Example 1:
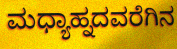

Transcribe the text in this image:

ಮಧ್ಯಾಹ್ನದವರೆಗಿನ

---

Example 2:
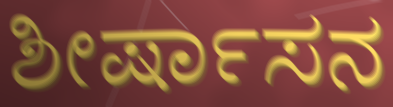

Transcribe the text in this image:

ಶೀರ್ಷಾಸನ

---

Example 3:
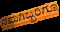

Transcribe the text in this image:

ನಮಗಿಬ್ಬರಿಗೂ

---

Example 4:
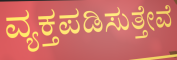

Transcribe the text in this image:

ವ್ಯಕ್ತಪಡಿಸುತ್ತೇವೆ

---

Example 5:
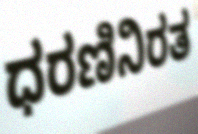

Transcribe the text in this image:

ಧರಣಿನಿರತ